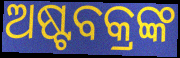
ଅଷ୍ଟବକ୍ରଙ୍କ